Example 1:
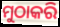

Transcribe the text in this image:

ମୁଠାକରି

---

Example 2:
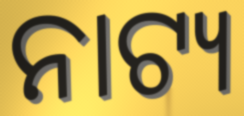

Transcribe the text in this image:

ନାଟ୍ୟ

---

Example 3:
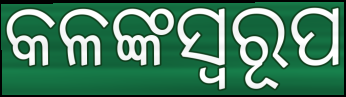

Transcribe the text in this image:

କଳଙ୍କସ୍ୱରୂପ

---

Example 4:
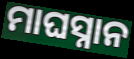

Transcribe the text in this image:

ମାଘସ୍ନାନ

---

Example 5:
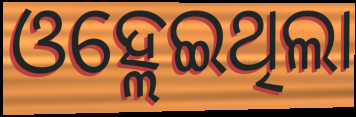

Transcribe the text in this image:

ଓହ୍ଲେଇଥିଲା